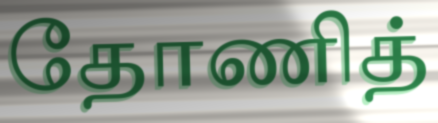
தோணித்